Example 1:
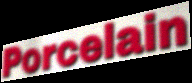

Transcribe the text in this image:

Porcelain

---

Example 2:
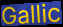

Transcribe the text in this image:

Gallic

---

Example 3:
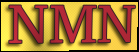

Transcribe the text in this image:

NMN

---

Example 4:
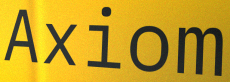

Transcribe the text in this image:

Axiom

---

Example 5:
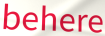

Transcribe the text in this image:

behere